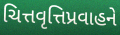
ચિત્તવૃત્તિપ્રવાહને